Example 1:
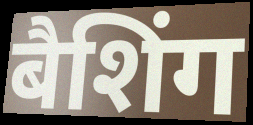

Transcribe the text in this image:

बैशिंग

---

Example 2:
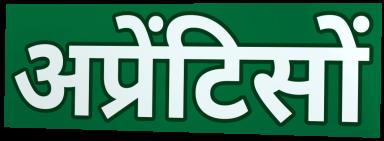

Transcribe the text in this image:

अप्रेंटिसों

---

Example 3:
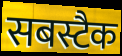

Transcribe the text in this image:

सबस्टैक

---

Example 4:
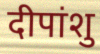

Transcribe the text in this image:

दीपांशु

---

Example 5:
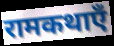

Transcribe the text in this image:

रामकथाएँ